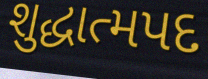
શુદ્ધાત્મપદ